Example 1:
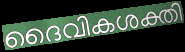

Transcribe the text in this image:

ദൈവികശക്തി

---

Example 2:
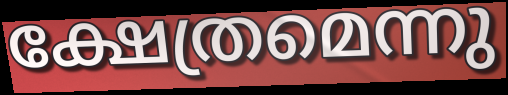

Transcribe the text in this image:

ക്ഷേത്രമെന്നു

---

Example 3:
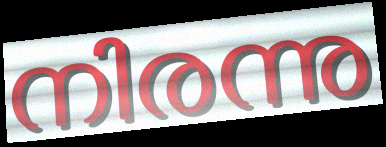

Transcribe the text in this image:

നിരന്നു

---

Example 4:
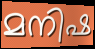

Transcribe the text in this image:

മനിഷ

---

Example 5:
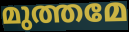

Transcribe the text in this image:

മുത്തമേ